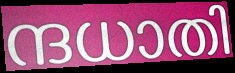
ന്ദധാതി